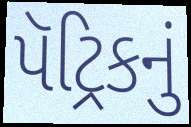
પૅટ્રિકનું